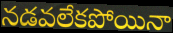
నడవలేకపోయినా